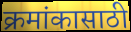
क्रमांकासाठी